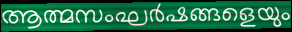
ആത്മസംഘർഷങ്ങളെയും